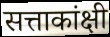
सत्ताकांक्षी